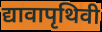
द्यावापृथिवी